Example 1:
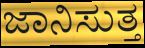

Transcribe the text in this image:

ಜಾನಿಸುತ್ತ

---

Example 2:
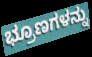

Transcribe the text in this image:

ಭ್ರೂಣಗಳನ್ನು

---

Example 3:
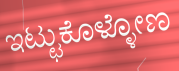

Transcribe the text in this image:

ಇಟ್ಟುಕೊಳ್ಳೋಣ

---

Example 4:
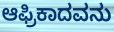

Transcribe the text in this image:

ಆಫ್ರಿಕಾದವನು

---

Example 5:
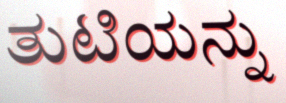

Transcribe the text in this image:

ತುಟಿಯನ್ನು